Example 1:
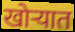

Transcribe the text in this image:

खोऱ्यात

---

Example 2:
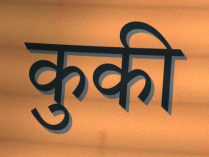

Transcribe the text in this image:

कुकी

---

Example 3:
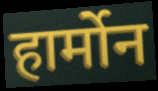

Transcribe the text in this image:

हार्मोन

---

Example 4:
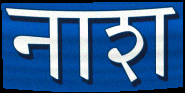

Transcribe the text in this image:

नाश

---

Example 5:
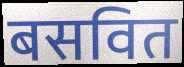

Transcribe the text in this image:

बसवित